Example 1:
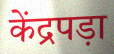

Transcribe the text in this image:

केंद्रपड़ा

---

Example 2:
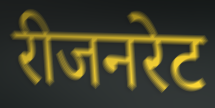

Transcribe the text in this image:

रीजनरेट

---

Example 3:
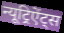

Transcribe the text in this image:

न्यूट्रिऐंट्स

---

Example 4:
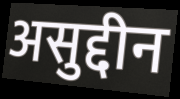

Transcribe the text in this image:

असुद्दीन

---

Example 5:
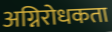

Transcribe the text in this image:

अग्निरोधकता